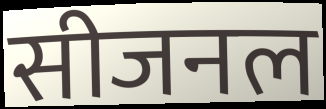
सीजनल